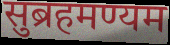
सुब्रहमण्यम